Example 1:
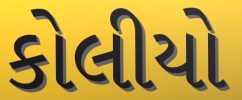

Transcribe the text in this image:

કોલીયો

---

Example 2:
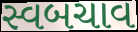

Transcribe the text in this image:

સ્વબચાવ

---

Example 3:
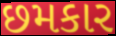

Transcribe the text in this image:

છમકાર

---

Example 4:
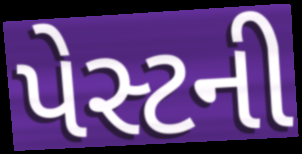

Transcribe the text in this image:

પેસ્ટની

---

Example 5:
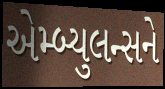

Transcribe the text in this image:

એમ્બ્યુલન્સને